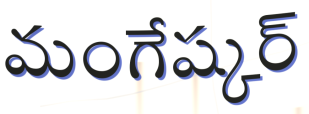
మంగేష్కర్